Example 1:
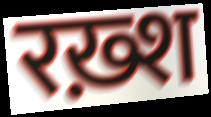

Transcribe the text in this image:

रख़्श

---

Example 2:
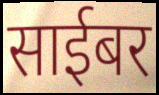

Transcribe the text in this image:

साईबर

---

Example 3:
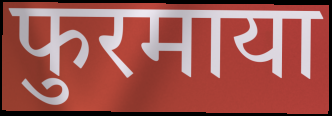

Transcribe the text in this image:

फुरमाया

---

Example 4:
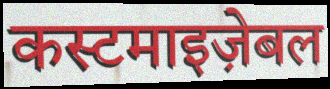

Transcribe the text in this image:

कस्टमाइज़ेबल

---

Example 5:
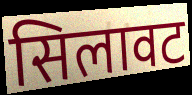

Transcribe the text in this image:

सिलावट